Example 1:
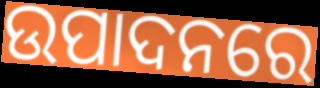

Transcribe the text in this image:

ଉପାଦନରେ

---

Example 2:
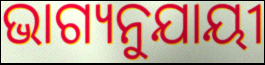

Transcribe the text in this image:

ଭାଗ୍ୟନୁଯାୟୀ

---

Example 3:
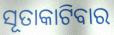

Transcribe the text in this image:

ସୂତାକାଟିବାର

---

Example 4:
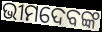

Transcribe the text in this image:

ଭୀମଦେବଙ୍କ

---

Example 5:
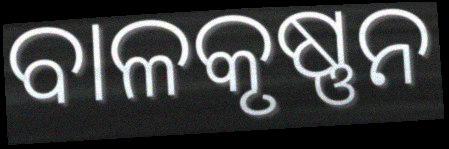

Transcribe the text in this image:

ବାଳକୃଷ୍ଣନ